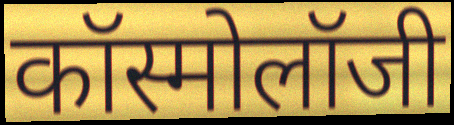
कॉस्मोलॉजी